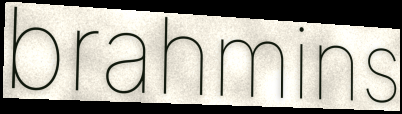
brahmins